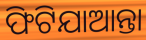
ଫିଟିଯାଆନ୍ତା